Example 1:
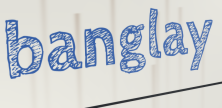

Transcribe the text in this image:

banglay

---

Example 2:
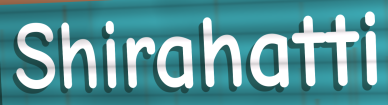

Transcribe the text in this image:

Shirahatti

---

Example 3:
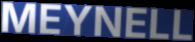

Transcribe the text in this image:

MEYNELL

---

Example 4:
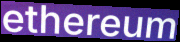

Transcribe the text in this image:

ethereum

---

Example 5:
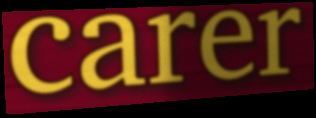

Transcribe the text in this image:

carer